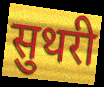
सुथरी